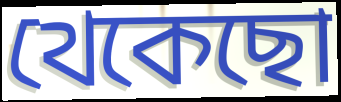
থেকেছো